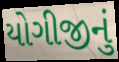
યોગીજીનું